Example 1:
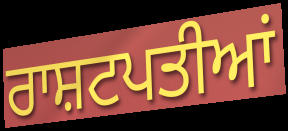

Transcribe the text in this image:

ਰਾਸ਼ਟਪਤੀਆਂ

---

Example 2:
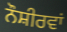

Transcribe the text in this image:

ਨੌਸ਼ੀਰਵਾਂ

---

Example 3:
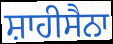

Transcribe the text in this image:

ਸ਼ਾਹੀਸੈਨਾ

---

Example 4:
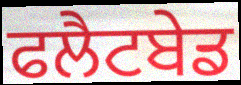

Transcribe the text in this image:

ਫਲੈਟਬੇਡ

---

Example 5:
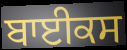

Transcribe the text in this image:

ਬਾਈਕਸ